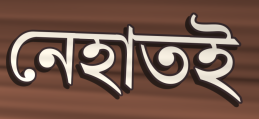
নেহাতই